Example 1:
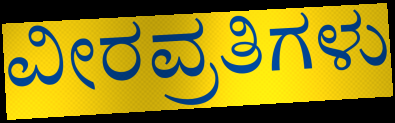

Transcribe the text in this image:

ವೀರವ್ರತಿಗಳು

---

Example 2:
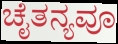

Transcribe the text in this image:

ಚೈತನ್ಯವೂ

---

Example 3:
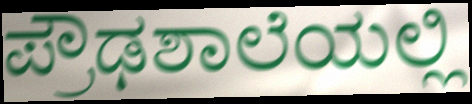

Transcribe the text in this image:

ಪ್ರೌಢಶಾಲೆಯಲ್ಲಿ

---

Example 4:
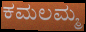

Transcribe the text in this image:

ಕಮಲಮ್ಮ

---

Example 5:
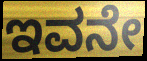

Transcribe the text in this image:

ಇವನೇ